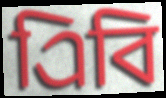
এিবি